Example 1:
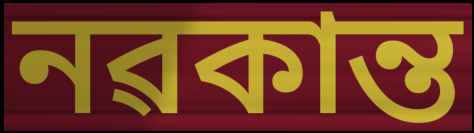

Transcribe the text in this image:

নৱকান্ত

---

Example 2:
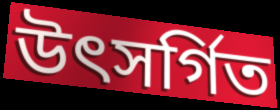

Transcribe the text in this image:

উৎসৰ্গিত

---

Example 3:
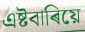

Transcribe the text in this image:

এষ্টবাৰিয়ে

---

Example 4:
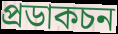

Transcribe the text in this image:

প্ৰডাকচন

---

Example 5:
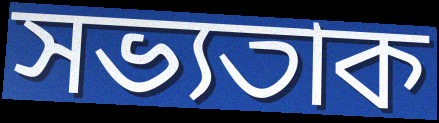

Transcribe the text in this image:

সভ্যতাক